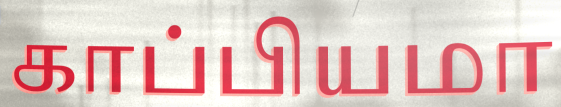
காப்பியமா